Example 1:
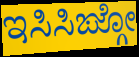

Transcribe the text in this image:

ಇಸಿಸಿಙ್ಗೋ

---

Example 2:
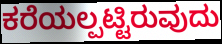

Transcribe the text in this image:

ಕರೆಯಲ್ಪಟ್ಟಿರುವುದು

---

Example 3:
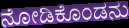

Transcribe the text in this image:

ನೋಡಿಕೊಂಡನು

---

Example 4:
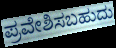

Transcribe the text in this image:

ಪ್ರವೇಶಿಸಬಹುದು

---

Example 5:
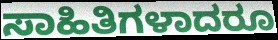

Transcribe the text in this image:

ಸಾಹಿತಿಗಳಾದರೂ